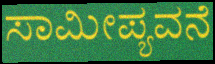
ಸಾಮೀಪ್ಯವನೆ